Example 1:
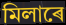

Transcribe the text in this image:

মিলাৰে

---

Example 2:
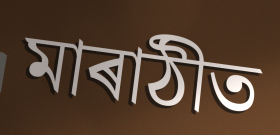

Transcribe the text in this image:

মাৰাঠীত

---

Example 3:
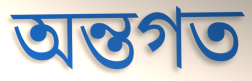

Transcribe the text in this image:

অন্তগত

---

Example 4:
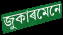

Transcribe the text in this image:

জুকাৰমেনে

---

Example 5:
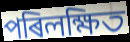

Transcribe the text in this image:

পৰিলক্ষিত